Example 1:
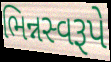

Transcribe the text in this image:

ભિન્નસ્વરૂપે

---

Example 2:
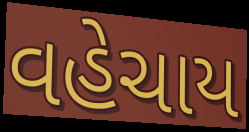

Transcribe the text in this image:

વહેચાય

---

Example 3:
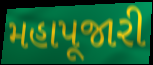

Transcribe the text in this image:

મહાપૂજારી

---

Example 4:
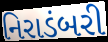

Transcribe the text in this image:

નિરાડંબરી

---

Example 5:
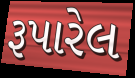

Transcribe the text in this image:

રૂપારેલ